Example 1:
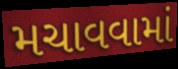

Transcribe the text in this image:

મચાવવામાં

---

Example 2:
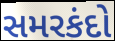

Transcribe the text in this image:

સમરકંદો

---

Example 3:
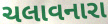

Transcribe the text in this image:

ચલાવનારા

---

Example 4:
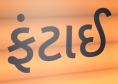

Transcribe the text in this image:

ફંટાઈ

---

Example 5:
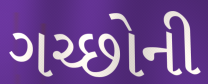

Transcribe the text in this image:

ગચ્છોની